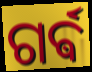
ଗର୍ଵ